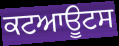
ਕਟਆਊਟਸ